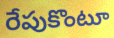
రేపుకొంటూ